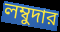
লম্বুদার